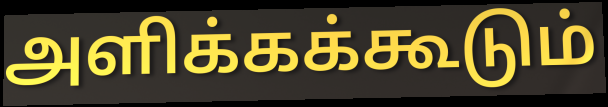
அளிக்கக்கூடும்